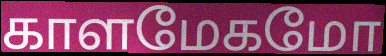
காளமேகமோ